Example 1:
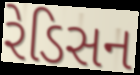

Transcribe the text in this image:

રેડિસન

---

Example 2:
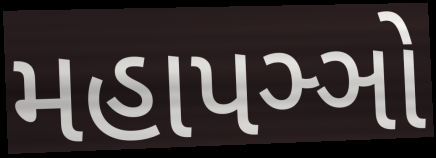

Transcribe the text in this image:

મહાપઞ્ઞો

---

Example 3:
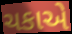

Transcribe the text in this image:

ચકાએ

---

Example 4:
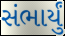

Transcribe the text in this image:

સંભાર્યું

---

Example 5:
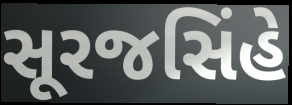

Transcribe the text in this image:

સૂરજસિંહે